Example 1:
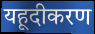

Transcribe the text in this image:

यहूदीकरण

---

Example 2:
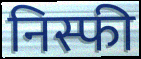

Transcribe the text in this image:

निस्फी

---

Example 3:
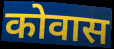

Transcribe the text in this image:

कोवास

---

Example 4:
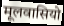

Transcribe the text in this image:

मूलवासियो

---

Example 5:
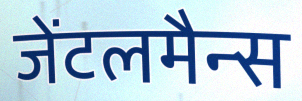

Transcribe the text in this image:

जेंटलमैन्स